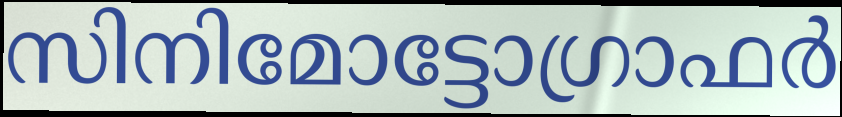
സിനിമോട്ടോഗ്രാഫർ